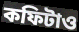
কফিটাও